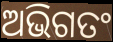
ଅଭିଗତଂ